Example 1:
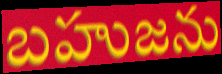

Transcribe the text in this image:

బహుజను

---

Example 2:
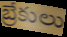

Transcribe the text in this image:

బ్రేకులు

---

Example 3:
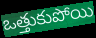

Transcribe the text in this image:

ఒత్తుకుపోయి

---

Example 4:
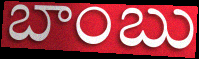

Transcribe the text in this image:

బాంబు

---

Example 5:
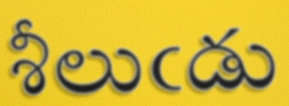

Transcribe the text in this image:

శీలుఁడు